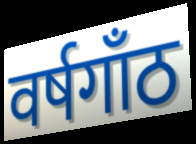
वर्षगाँठ